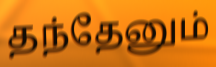
தந்தேனும்